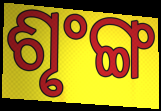
ଶୃଂଙ୍ଗ